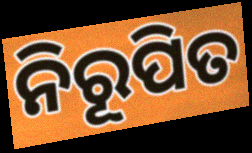
ନିରୂପିତ